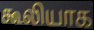
கூலியாக